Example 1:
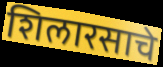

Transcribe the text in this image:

शिलारसाचे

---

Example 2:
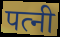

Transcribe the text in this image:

पत्नी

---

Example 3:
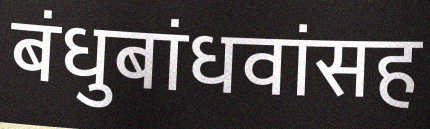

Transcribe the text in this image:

बंधुबांधवांसह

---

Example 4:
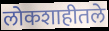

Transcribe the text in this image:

लोकशाहीतले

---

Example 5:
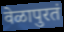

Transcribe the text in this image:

वेळापुरतं